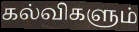
கல்விகளும்